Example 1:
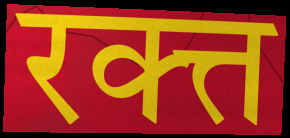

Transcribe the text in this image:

रक्त्त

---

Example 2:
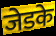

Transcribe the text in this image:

जेडके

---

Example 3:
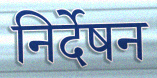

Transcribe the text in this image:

निर्देषन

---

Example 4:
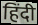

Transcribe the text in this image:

हिंदी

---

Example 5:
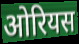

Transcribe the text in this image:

ओरियस